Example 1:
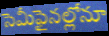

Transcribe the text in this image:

సెమీఫైనల్లోనూ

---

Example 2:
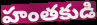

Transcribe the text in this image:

హంతకుడి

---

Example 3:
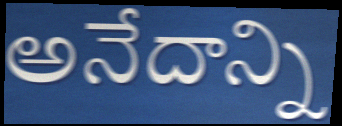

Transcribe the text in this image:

అనేదాన్ని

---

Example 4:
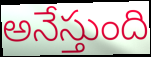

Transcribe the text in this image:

అనేస్తుంది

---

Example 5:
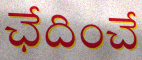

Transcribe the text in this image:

ఛేదించే